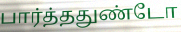
பார்த்ததுண்டோ